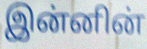
இன்னின்